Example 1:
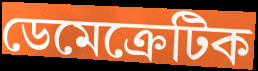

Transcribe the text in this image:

ডেমেক্রেটিক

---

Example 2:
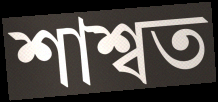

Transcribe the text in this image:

শাশ্বত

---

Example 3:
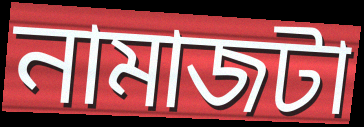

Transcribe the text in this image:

নামাজটা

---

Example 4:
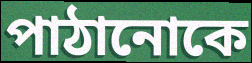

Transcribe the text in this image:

পাঠানোকে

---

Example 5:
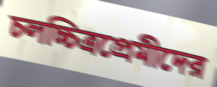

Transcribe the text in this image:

চলচ্চিত্রপ্রেমীদের